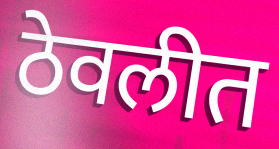
ठेवलीत